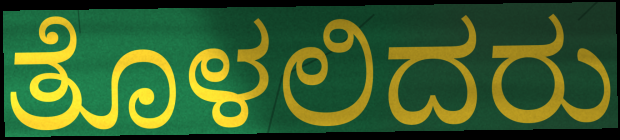
ತೊಳಲಿದರು